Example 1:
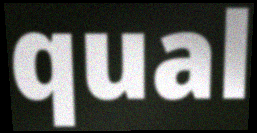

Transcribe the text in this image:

qual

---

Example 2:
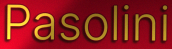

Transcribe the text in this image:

Pasolini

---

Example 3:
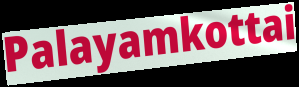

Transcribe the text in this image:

Palayamkottai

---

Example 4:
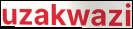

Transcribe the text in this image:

uzakwazi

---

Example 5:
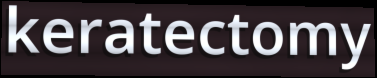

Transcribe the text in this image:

keratectomy